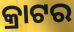
କ୍ରାଟର